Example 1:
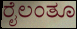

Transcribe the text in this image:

ರೈಲಂತೂ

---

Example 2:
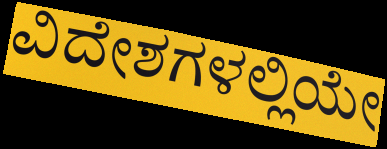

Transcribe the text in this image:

ವಿದೇಶಗಳಲ್ಲಿಯೇ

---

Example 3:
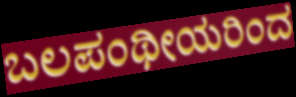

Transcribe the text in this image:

ಬಲಪಂಥೀಯರಿಂದ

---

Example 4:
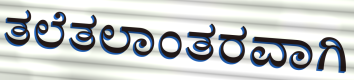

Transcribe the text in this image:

ತಲೆತಲಾಂತರವಾಗಿ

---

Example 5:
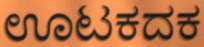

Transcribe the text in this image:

ಊಟಕದಕ